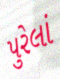
પુરેલાં